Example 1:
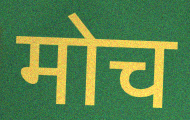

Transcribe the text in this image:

मोच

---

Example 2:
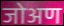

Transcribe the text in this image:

जोअण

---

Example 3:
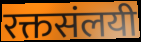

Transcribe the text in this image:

रक्तसंलयी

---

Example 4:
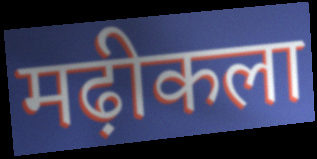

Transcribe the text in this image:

मढ़ीकला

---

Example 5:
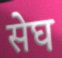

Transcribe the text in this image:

सेघ